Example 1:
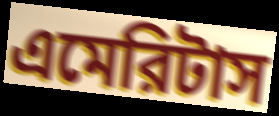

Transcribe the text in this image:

এমেরিটাস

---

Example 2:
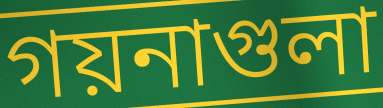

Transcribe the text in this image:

গয়নাগুলা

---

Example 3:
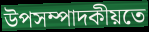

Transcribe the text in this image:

উপসম্পাদকীয়তে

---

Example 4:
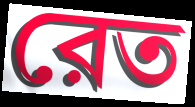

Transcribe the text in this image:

রেত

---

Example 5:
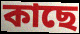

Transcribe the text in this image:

কাছে